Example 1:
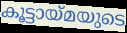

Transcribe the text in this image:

കൂട്ടായ്മയുടെ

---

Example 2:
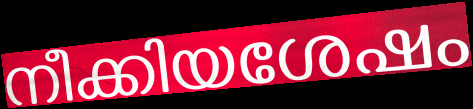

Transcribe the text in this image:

നീക്കിയശേഷം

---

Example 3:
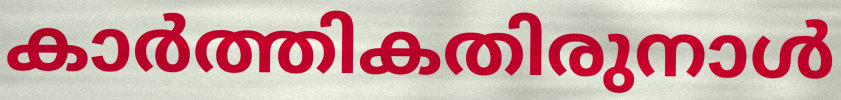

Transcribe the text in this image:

കാർത്തികതിരുനാൾ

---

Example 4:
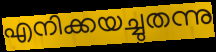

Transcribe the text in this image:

എനിക്കയച്ചുതന്നു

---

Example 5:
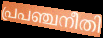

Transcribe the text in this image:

പ്രപഞ്ചനീതി